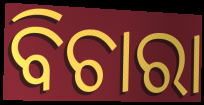
ବିଚାରା